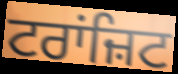
ਟਰਾਂਜ਼ਿਟ